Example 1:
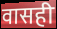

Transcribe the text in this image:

वासही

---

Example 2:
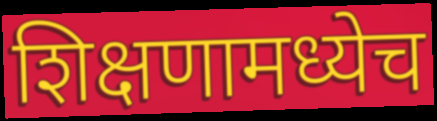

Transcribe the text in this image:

शिक्षणामध्येच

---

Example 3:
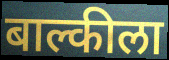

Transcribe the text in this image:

बाल्कीला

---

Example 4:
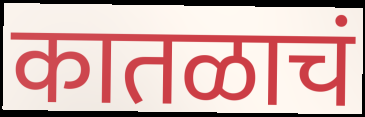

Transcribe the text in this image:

कातळाचं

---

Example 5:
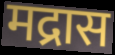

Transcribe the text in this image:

मद्रास